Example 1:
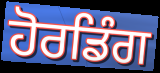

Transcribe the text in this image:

ਹੋਰਡਿੰਗ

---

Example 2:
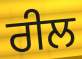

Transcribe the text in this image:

ਰੀਲ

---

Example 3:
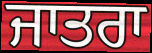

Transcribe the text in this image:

ਜਾਤਰਾ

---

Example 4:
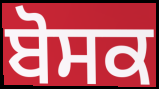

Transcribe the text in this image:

ਬੋਸਕ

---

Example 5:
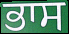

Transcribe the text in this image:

ਭਾਸ